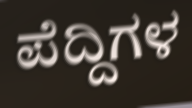
ಪೆದ್ದಿಗಳ